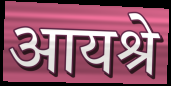
आयश्रे